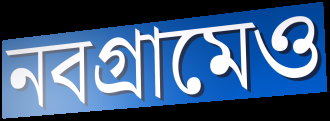
নবগ্রামেও